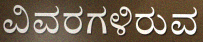
ವಿವರಗಳಿರುವ